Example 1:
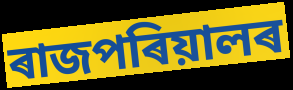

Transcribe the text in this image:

ৰাজপৰিয়ালৰ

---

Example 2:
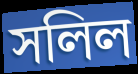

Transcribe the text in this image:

সলিল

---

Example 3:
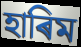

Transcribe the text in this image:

হাৰিম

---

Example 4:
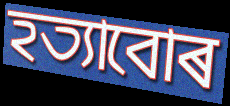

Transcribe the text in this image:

হত্যাবোৰ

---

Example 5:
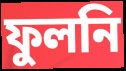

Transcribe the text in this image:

ফুলনি